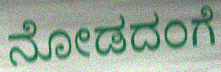
ನೋಡದಂಗೆ